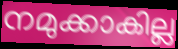
നമുക്കാകില്ല